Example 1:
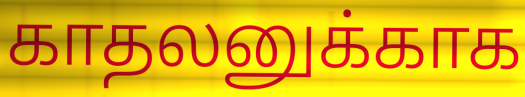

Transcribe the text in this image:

காதலனுக்காக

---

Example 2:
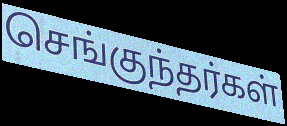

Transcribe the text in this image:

செங்குந்தர்கள்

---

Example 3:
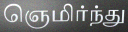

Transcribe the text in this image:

ஞெமிர்ந்து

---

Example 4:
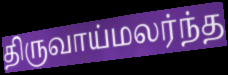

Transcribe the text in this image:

திருவாய்மலர்ந்த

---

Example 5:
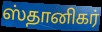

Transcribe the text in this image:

ஸ்தானிகர்